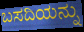
ಬಸದಿಯನ್ನು